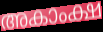
അകാംക്ഷ